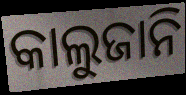
କାଲୁଜାନି